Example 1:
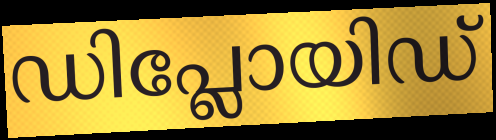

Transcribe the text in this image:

ഡിപ്ലോയിഡ്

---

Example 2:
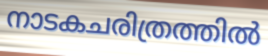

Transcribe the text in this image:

നാടകചരിത്രത്തിൽ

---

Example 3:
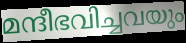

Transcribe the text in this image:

മന്ദീഭവിച്ചവയും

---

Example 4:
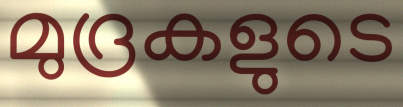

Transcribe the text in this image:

മുദ്രകളുടെ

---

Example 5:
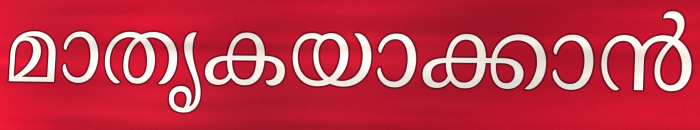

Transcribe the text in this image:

മാതൃകയാക്കാൻ